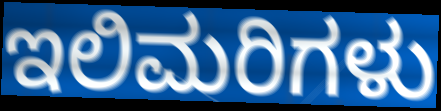
ಇಲಿಮರಿಗಳು